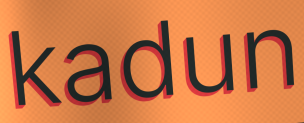
kadun